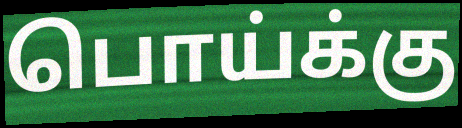
பொய்க்கு